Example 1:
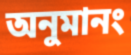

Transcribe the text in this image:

অনুমানং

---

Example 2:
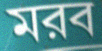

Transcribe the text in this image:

মরব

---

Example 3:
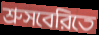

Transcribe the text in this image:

শ্রুসবেরিতে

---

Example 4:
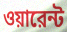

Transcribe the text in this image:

ওয়ারেন্ট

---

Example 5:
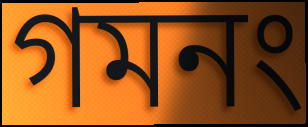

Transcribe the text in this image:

গমনং